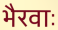
भैरवाः